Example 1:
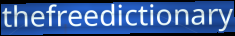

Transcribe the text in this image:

thefreedictionary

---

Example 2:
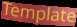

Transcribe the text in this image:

Template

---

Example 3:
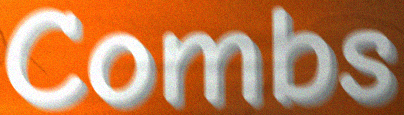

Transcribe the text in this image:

Combs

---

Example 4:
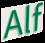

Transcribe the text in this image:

Alf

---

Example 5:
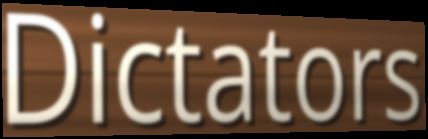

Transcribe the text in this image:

Dictators